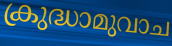
ക്രുദ്ധാമുവാച